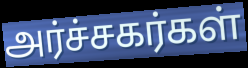
அர்ச்சகர்கள்